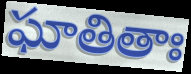
ఘాతితాః